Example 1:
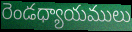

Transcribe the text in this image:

రెండధ్యాయములు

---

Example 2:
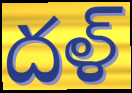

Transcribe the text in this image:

దళ్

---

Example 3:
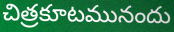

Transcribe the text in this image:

చిత్రకూటమునందు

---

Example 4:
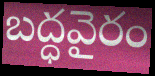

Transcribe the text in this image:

బద్ధవైరం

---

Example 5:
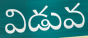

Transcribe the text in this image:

విడువ